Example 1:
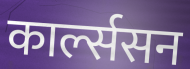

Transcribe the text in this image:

कार्ल्ससन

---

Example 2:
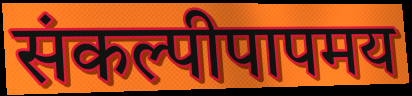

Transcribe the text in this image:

संकल्पीपापमय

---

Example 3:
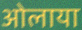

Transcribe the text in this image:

ओलाया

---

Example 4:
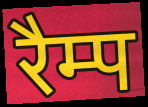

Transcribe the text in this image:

रैम्प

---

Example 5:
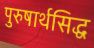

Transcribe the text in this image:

पुरुषार्थसिद्ध